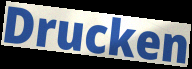
Drucken